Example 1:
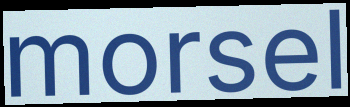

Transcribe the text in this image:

morsel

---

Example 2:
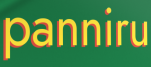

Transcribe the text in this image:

panniru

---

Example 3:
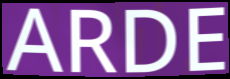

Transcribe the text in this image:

ARDE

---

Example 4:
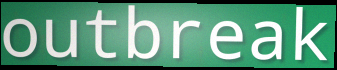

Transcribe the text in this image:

outbreak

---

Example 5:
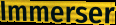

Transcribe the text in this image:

Immerser